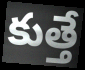
కుత్తే